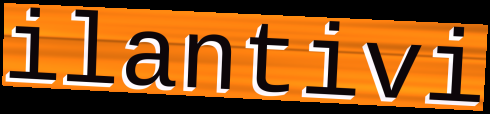
ilantivi